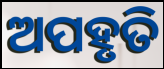
ଅପହୃତି